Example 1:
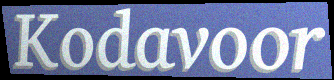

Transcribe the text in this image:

Kodavoor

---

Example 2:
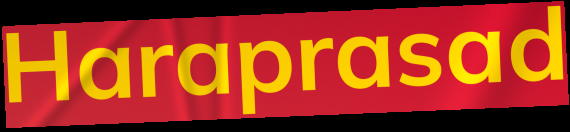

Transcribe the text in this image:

Haraprasad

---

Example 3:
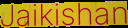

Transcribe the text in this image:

Jaikishan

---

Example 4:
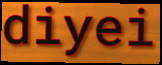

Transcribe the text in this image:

diyei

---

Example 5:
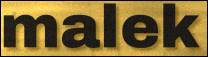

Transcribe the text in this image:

malek